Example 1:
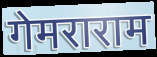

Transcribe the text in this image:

गेमराराम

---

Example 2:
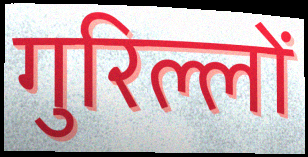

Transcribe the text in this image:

गुरिल्लों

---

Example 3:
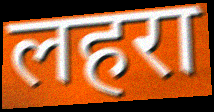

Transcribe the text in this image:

लहरा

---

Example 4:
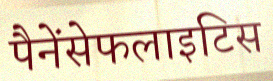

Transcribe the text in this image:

पैनेंसेफलाइटिस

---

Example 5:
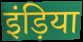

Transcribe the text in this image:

इंड़िया